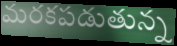
మరకపడుతున్న